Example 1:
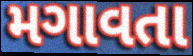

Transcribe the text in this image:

મગાવતા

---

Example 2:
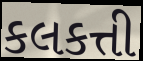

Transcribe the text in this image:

કલકત્તી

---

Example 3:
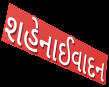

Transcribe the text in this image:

શહેનાઈવાદન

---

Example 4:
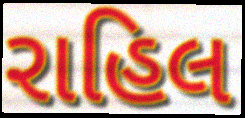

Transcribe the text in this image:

રાહિલ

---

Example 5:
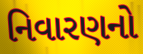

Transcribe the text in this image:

નિવારણનો